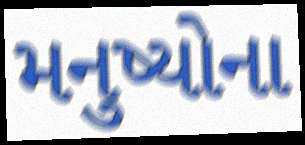
મનુષ્યોના